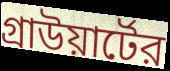
গ্রাউয়ার্টের